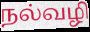
நல்வழி